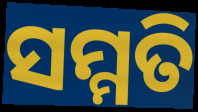
ସମ୍ମତି